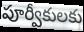
పూర్వీకులకు